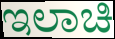
ಇಲಾಚಿ